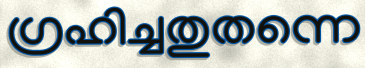
ഗ്രഹിച്ചതുതന്നെ